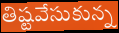
తిష్టవేసుకున్న